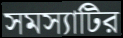
সমস্যাটির